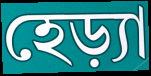
হেড়্যা